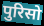
पुरिसो